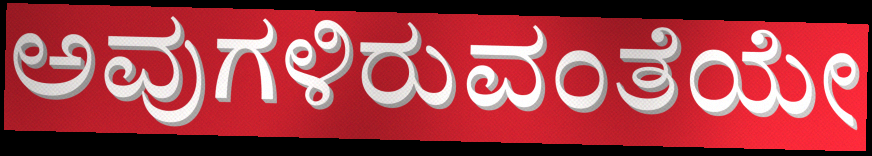
ಅವುಗಳಿರುವಂತೆಯೇ